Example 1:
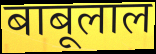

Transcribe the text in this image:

बाबूलाल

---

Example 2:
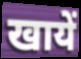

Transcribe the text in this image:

खायें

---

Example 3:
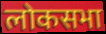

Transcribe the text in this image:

लोकसभा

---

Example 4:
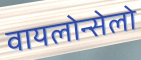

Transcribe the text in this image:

वायलोन्सेलो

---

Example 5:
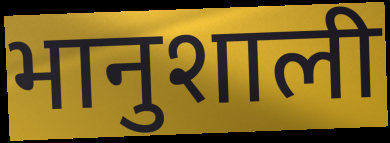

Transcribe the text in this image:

भानुशाली